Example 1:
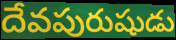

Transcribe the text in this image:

దేవపురుషుడు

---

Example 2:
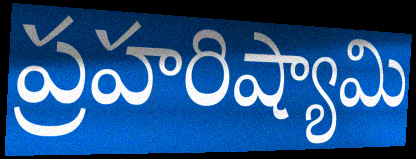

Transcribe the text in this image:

ప్రహరిష్యామి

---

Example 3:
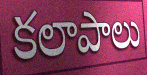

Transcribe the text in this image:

కలాపాలు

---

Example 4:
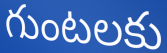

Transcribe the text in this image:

గుంటలకు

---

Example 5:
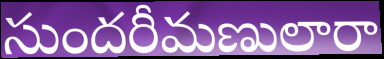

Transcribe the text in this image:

సుందరీమణులారా